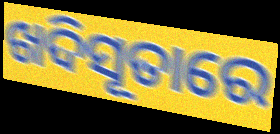
ଖଦିସୂତାରେ